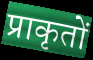
प्राकृतों